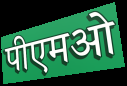
पीएमओ